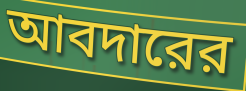
আবদারের